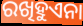
ରଖିହୁଏନା